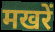
मखरें